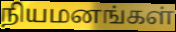
நியமனங்கள்